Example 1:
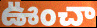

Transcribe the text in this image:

ఊంచా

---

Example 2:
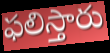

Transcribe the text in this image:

ఫలిస్తారు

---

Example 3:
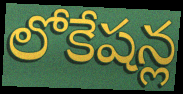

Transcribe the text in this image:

లోకేషన్ల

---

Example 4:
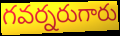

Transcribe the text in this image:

గవర్నరుగారు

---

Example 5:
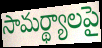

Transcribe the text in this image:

సామర్థ్యాలపై